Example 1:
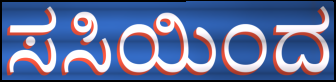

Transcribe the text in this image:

ಸಸಿಯಿಂದ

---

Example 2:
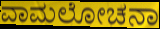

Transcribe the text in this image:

ವಾಮಲೋಚನಾ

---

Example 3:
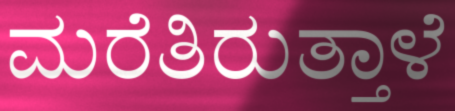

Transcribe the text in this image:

ಮರೆತಿರುತ್ತಾಳೆ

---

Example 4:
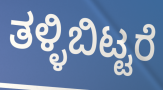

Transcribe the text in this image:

ತಳ್ಳಿಬಿಟ್ಟರೆ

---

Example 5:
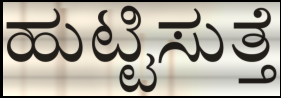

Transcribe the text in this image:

ಹುಟ್ಟಿಸುತ್ತೆ